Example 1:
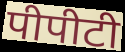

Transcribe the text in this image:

पीपीटी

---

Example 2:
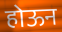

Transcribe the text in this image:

होऊन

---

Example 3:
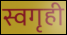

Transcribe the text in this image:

स्वगृही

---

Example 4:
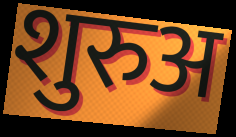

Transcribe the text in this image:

शुरुअ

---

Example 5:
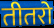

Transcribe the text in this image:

तीतरो